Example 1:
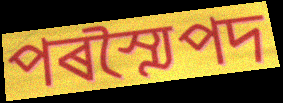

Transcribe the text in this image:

পৰস্মৈপদ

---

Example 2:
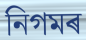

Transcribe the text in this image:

নিগমৰ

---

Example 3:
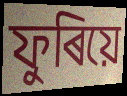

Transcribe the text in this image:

ফুৰিয়ে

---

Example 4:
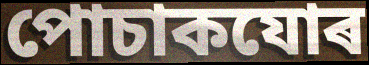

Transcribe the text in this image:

পোচাকযোৰ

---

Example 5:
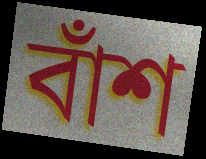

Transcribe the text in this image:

বাঁশ